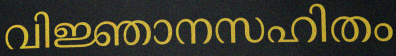
വിജ്ഞാനസഹിതം